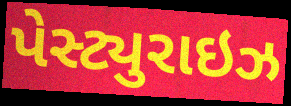
પેસ્ટ્યુરાઇઝ